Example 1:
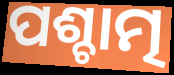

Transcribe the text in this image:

ପଶ୍ଚାତ୍ମ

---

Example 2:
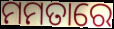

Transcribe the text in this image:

ମମତାରେ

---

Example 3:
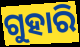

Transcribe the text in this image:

ଗୁହାରି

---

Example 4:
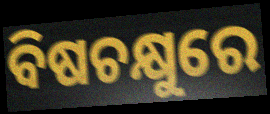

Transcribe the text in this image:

ବିଷଚକ୍ଷୁରେ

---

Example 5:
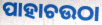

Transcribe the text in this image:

ପାହାଚଉଠା